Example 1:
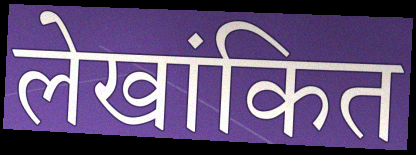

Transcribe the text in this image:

लेखांकित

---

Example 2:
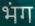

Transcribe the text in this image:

भंग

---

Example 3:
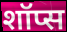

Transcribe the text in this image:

शॉप्स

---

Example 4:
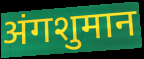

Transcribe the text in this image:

अंगशुमान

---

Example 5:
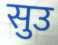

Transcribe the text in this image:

सुउ